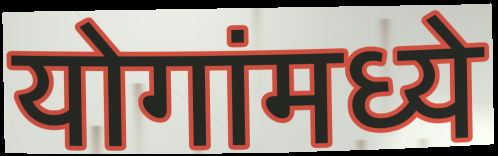
योगांमध्ये